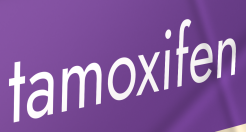
tamoxifen